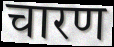
चारण